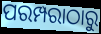
ପରମ୍ପରାଠାରୁ